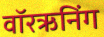
वॉरऋनिंग